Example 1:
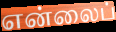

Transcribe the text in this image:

என்லைப்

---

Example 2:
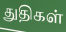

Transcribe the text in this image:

துதிகள்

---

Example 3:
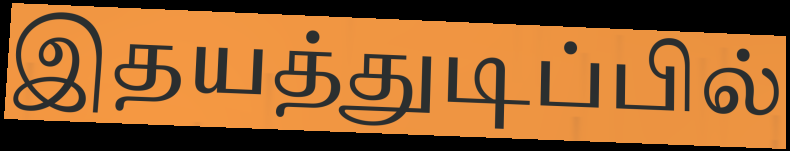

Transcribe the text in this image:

இதயத்துடிப்பில்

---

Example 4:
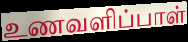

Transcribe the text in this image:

உணவளிப்பாள்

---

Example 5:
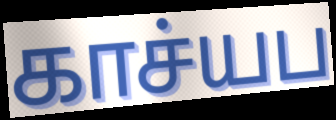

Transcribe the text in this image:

காச்யப